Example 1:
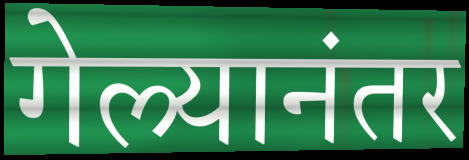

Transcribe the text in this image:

गेल्यानंतर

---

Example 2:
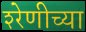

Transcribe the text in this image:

श्रेणीच्या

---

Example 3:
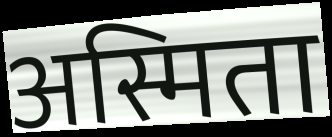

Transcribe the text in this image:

अस्मिता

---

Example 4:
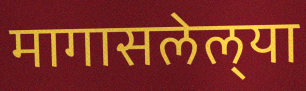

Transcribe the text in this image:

मागासलेल्या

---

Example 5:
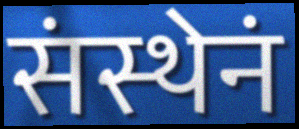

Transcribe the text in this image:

संस्थेनं